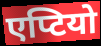
एप्टियो